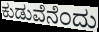
ಕುಡುವೆನೆಂದು